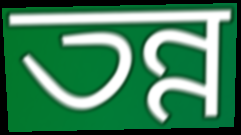
তন্ন